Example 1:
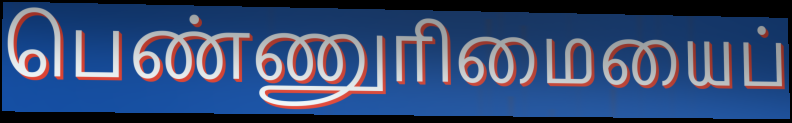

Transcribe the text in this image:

பெண்ணுரிமையைப்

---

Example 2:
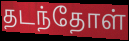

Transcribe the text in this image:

தடந்தோள்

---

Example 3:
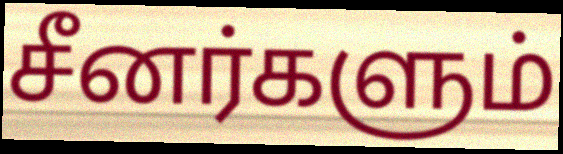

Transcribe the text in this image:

சீனர்களும்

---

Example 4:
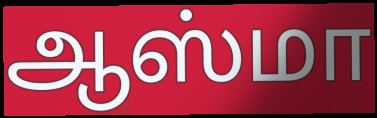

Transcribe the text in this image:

ஆஸ்மா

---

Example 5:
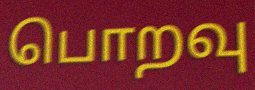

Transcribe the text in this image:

பொறவு